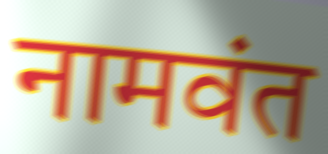
नामवंत